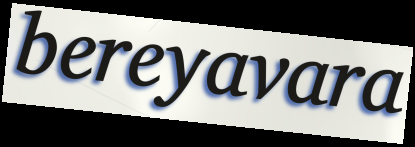
bereyavara